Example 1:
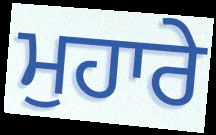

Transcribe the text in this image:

ਮੁਹਾਰੇ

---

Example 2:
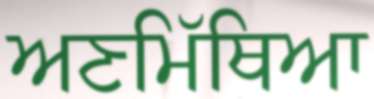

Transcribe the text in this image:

ਅਣਮਿੱਥਿਆ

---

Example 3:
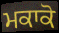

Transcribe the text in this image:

ਮਕਾਕੋ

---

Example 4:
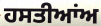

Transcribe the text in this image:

ਹਸਤੀਆਂਅ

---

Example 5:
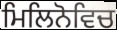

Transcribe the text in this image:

ਮਿਲਿਨੋਵਿਚ